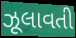
ઝૂલાવતી